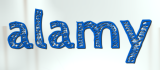
alamy